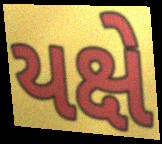
યક્ષે